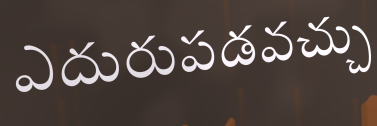
ఎదురుపడవచ్చు